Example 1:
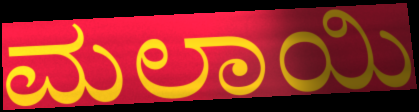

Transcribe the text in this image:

ಮಲಾಯಿ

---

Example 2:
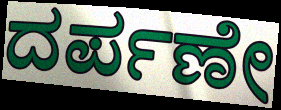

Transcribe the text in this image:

ದರ್ಪಣೇ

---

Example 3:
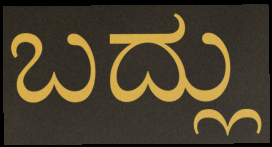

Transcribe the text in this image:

ಬದ್ಲು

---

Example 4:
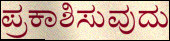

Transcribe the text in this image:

ಪ್ರಕಾಶಿಸುವುದು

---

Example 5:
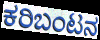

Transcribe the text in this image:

ಕರಿಬಂಟನ